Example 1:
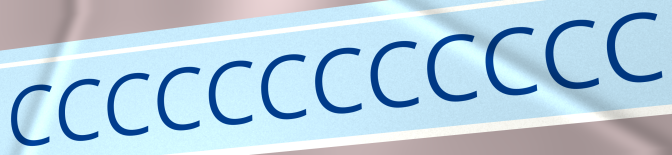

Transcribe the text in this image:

CCCCCCCCCCCC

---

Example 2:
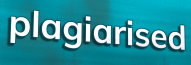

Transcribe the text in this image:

plagiarised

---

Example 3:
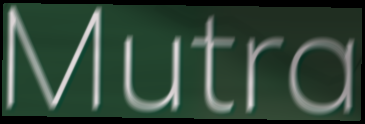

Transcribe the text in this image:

Mutra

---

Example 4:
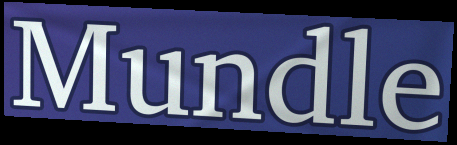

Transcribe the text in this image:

Mundle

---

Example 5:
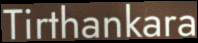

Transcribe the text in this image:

Tirthankara